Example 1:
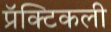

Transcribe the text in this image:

प्रॅक्टिकली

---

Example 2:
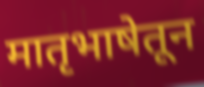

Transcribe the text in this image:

मातृभाषेतून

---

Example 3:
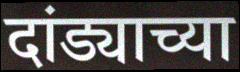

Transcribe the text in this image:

दांड्याच्या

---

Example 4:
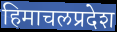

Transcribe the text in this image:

हिमाचलप्रदेश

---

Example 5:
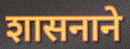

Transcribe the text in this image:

शासनाने